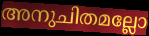
അനുചിതമല്ലോ